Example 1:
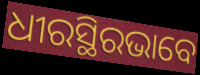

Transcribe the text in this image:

ଧୀରସ୍ଥିରଭାବେ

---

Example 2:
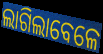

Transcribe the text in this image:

ଲାଗିଲାବେଳେ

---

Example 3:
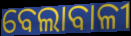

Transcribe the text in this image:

ବେଲାବାଳୀ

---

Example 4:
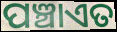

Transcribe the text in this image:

ପଞ୍ଚାଏତ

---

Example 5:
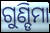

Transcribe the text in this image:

ଗୁଣ୍ଡିମା